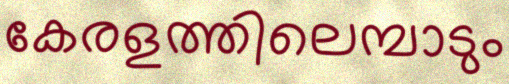
കേരളത്തിലെമ്പാടും